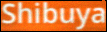
Shibuya